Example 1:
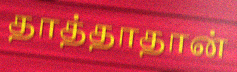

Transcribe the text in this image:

தாத்தாதான்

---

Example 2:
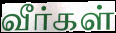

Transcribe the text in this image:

வீர்கள்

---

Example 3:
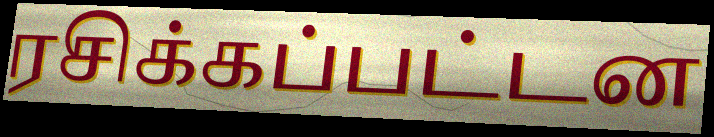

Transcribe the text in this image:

ரசிக்கப்பட்டன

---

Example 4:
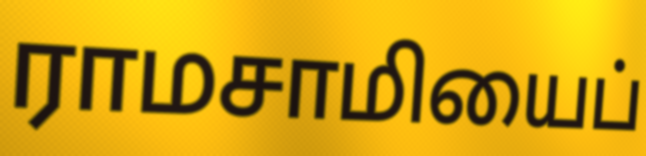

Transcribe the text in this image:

ராமசாமியைப்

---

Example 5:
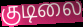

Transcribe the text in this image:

குடிலை